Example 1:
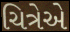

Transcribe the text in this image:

ચિત્રેએ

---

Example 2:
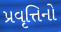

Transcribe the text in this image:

પ્રવૃત્તિનો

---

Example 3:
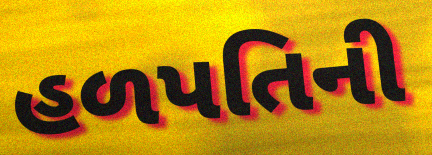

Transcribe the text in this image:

હળપતિની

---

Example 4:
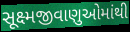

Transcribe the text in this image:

સૂક્ષ્મજીવાણુઓમાંથી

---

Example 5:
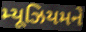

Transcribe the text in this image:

મ્યૂઝિયમને